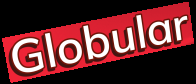
Globular